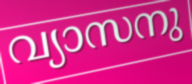
വ്യാസനു